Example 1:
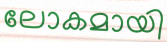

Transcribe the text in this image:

ലോകമായി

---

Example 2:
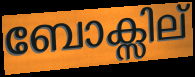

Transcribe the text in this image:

ബോക്സില്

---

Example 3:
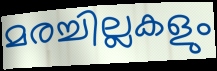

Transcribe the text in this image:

മരച്ചില്ലകളും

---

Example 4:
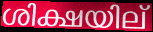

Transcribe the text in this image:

ശിക്ഷയില്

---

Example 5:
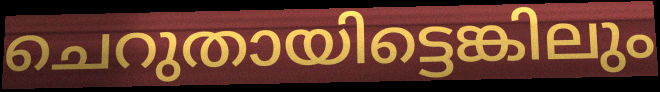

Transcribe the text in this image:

ചെറുതായിട്ടെങ്കിലും